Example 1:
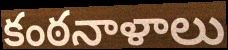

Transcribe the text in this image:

కంఠనాళాలు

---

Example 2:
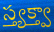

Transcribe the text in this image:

స్త్యక్త్వా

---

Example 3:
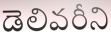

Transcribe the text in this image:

డెలివరీని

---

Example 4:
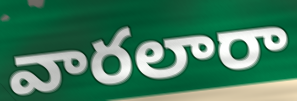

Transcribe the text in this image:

వారలారా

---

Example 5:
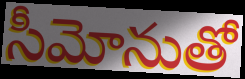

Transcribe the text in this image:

సీమోనుతో